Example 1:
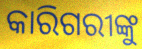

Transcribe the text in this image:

କାରିଗରୀଙ୍କୁ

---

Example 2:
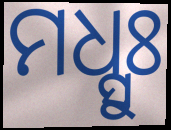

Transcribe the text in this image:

ମଧ୍ସୁଃ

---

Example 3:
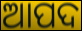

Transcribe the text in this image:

ଆପଦ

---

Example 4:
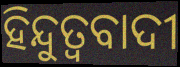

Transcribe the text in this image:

ହିନ୍ଦୁତ୍ବବାଦୀ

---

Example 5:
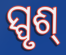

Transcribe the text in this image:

ସ୍ପୃଶ୍